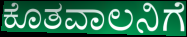
ಕೊತವಾಲನಿಗೆ